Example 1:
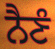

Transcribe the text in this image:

ਨੈਣੰ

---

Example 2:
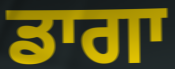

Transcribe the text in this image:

ਡਾਗਾ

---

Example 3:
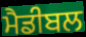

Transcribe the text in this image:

ਮੈਡੀਬਲ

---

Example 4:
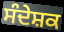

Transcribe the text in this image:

ਸੰਦੇਸ਼ਕ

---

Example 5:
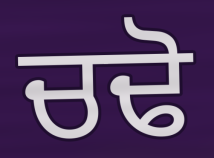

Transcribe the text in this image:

ਚਢੋ